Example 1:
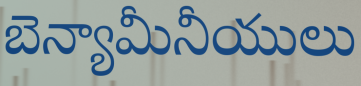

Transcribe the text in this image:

బెన్యామీనీయులు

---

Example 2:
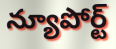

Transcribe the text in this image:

న్యూపోర్ట్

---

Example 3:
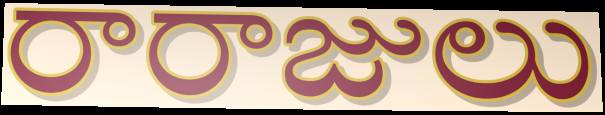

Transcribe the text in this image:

రారాజులు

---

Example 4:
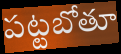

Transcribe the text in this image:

పట్టబోతూ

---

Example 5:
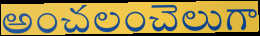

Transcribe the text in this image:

అంచలంచెలుగా